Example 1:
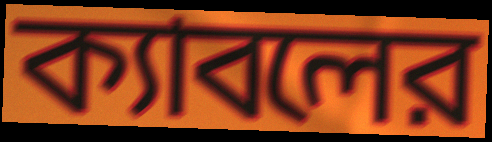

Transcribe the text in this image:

ক্যাবলের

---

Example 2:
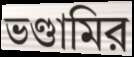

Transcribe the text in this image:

ভণ্ডামির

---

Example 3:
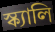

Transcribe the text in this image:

স্ক্যালি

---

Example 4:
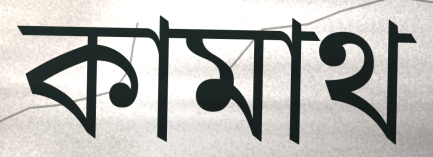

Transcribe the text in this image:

কামাথ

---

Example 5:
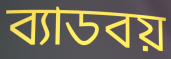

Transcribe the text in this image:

ব্যাডবয়